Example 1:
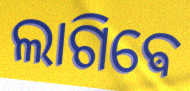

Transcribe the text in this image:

ଲାଗିଵେ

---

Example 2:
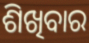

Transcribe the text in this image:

ଶିଖିବାର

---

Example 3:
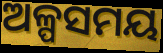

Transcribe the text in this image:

ଅଳ୍ପସମୟ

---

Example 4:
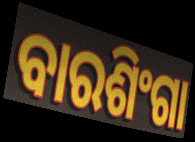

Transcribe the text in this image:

ବାରଶିଂଗା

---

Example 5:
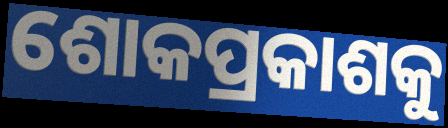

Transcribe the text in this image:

ଶୋକପ୍ରକାଶକୁ